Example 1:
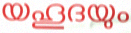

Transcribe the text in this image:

യഹൂദയും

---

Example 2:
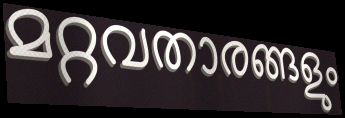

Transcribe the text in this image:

മറ്റവതാരങ്ങളും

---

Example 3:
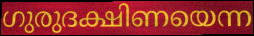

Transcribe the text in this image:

ഗുരുദക്ഷിണയെന്ന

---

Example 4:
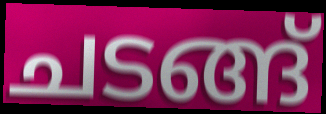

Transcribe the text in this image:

ചടങ്ങ്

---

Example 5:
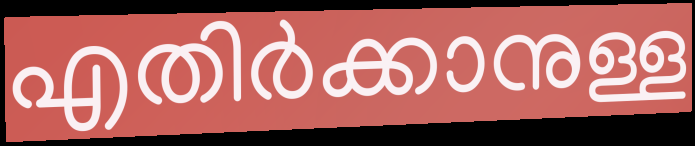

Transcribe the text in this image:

എതിർക്കാനുള്ള